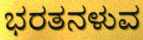
ಭರತನಳುವ